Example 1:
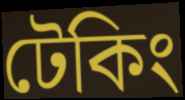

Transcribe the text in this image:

টেকিং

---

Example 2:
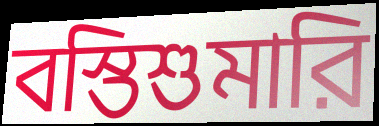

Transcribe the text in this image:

বস্তিশুমারি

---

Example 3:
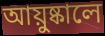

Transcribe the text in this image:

আয়ুষ্কালে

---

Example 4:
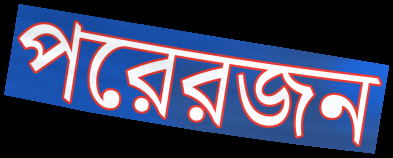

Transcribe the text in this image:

পরেরজন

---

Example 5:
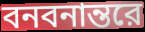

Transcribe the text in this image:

বনবনান্তরে